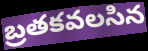
బ్రతకవలసిన